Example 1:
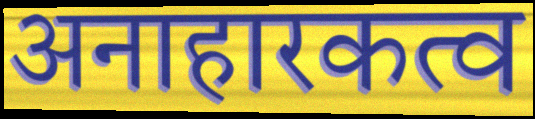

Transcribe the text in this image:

अनाहारकत्व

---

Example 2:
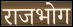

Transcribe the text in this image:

राजभोग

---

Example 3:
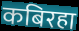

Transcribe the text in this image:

कबिरहा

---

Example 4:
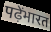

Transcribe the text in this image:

पढ़ेंभारत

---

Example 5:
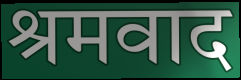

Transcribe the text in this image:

श्रमवाद